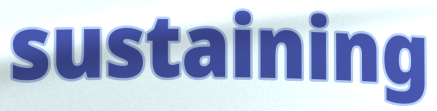
sustaining